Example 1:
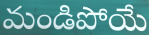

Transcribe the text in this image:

మండిపోయే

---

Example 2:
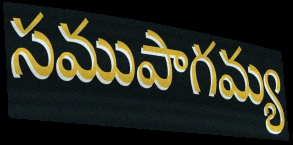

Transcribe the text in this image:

సముపాగమ్య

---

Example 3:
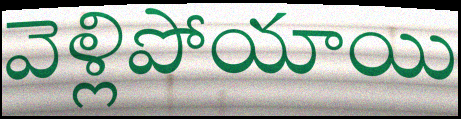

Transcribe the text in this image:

వెళ్లిపోయాయి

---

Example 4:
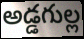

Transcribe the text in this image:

అడ్డగుల్ల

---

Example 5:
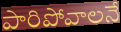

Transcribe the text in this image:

పారిపోవాలనే